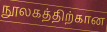
நூலகத்திற்கான